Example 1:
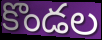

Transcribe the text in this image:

కొండల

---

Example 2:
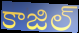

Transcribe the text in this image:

కాజిల్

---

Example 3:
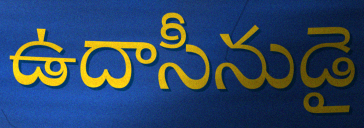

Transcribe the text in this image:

ఉదాసీనుడై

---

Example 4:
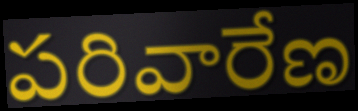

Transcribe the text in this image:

పరివారేణ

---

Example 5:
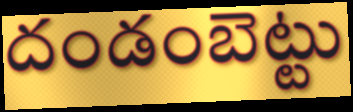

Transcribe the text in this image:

దండంబెట్టు